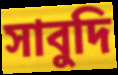
সাবুদি